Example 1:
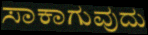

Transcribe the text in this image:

ಸಾಕಾಗುವುದು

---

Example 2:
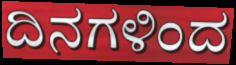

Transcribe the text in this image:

ದಿನಗಳಿಂದ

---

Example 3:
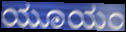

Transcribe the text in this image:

ಯೂಯಂ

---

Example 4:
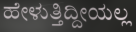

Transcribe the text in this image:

ಹೇಳುತ್ತಿದ್ದೀಯಲ್ಲ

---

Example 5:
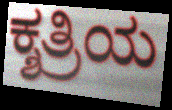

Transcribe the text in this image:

ಕ್ಶತ್ರಿಯ